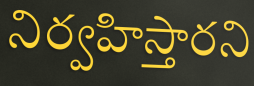
నిర్వహిస్తారని